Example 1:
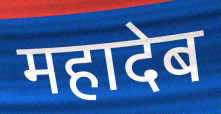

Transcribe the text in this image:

महादेब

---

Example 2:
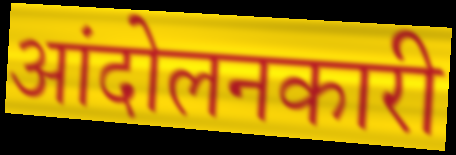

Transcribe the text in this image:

आंदोलनकारी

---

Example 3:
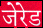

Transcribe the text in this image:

जेरेड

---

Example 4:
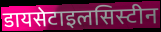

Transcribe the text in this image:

डायसेटाइलसिस्टीन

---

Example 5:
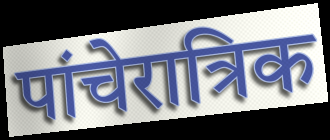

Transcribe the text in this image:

पांचेरात्रिक